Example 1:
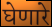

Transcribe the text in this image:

घेणारे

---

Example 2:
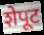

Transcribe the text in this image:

शेपूट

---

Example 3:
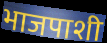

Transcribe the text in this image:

भाजपाशी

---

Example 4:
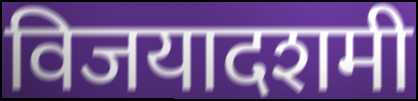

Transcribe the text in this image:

विजयादशमी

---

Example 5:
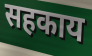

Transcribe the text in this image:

सहकाय